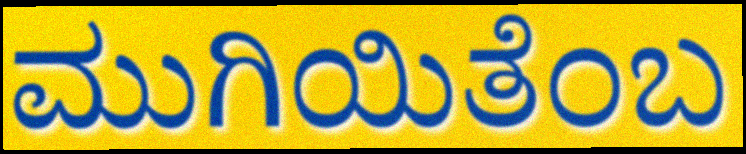
ಮುಗಿಯಿತೆಂಬ